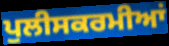
ਪੁਲੀਸਕਰਮੀਆਂ